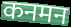
कनमन